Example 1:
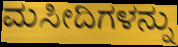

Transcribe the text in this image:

ಮಸೀದಿಗಳನ್ನು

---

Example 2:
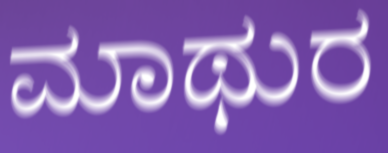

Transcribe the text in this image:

ಮಾಥುರ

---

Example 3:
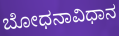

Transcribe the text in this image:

ಬೋಧನಾವಿಧಾನ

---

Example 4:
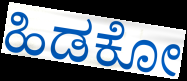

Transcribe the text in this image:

ಹಿಡಕೋ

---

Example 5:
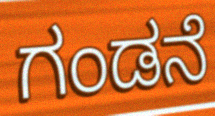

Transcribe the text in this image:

ಗಂಡನೆ